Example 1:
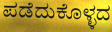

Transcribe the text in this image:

ಪಡೆದುಕೊಳ್ಳದ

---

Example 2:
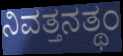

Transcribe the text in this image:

ನಿವತ್ತನತ್ಥಂ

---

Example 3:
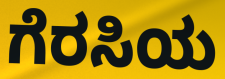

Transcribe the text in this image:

ಗೆರಸಿಯ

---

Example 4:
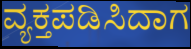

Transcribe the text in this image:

ವ್ಯಕ್ತಪಡಿಸಿದಾಗ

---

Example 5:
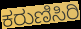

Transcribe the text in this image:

ಕರುಣಿಸಿರಿ